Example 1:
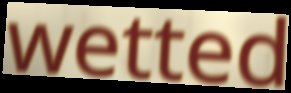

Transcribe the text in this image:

wetted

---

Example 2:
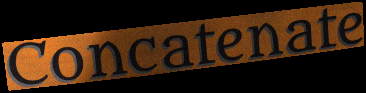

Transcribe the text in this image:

Concatenate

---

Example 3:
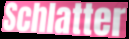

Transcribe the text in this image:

Schlatter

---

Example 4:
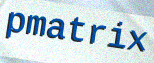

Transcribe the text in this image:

pmatrix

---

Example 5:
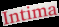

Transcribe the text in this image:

Intima